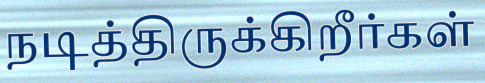
நடித்திருக்கிறீர்கள்